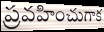
ప్రవహించుగాక